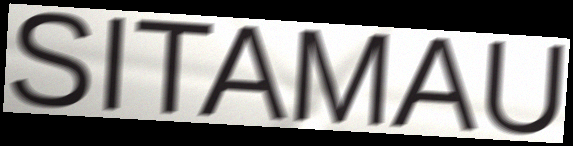
SITAMAU